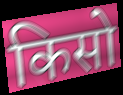
किसो